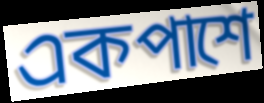
একপাশে